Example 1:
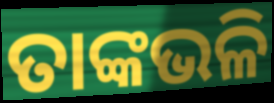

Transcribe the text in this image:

ତାଙ୍କଭଳି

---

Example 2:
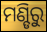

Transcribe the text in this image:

ମଣ୍ଡିରୁ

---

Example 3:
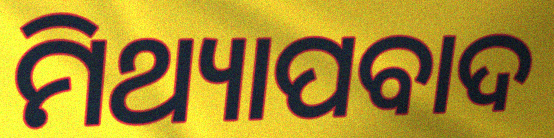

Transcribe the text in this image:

ମିଥ୍ୟାପବାଦ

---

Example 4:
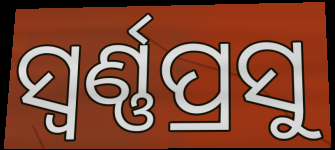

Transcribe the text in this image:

ସ୍ୱର୍ଣ୍ଣପ୍ରସୁ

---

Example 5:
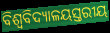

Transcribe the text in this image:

ବିଶ୍ଵବିଦ୍ୟାଳୟସ୍ତରୀୟ